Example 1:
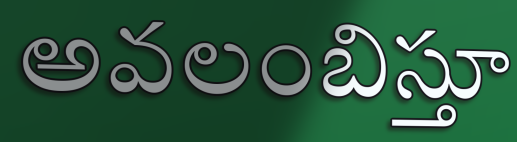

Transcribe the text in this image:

అవలంబిస్తూ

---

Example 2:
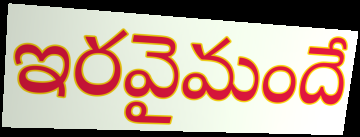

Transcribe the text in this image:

ఇరవైమందే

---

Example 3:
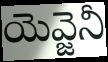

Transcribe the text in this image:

యెవ్జెనీ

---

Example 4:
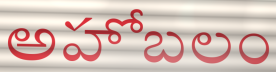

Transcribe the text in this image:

అహోబలం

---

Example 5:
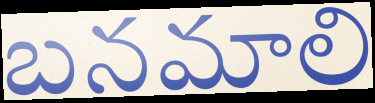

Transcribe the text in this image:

బనమాలి